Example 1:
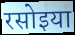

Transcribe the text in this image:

रसोइया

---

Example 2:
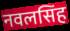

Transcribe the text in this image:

नवलसिंह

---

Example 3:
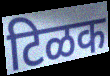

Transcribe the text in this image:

टिळक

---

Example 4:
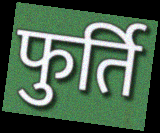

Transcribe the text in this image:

फुर्ति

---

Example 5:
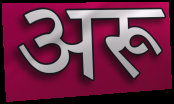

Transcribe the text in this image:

अरू